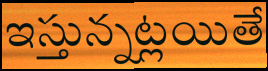
ఇస్తున్నట్లయితే